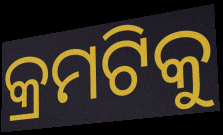
କ୍ରମଟିକୁ